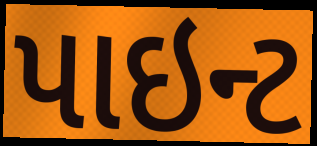
પાઇન્ટ